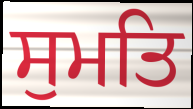
ਸੁਮਤਿ